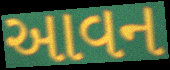
આવન